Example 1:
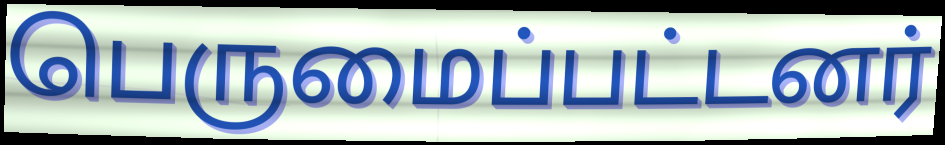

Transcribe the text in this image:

பெருமைப்பட்டனர்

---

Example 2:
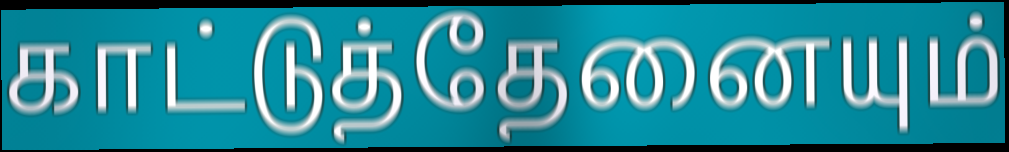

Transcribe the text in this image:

காட்டுத்தேனையும்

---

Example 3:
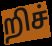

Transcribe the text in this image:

றிச்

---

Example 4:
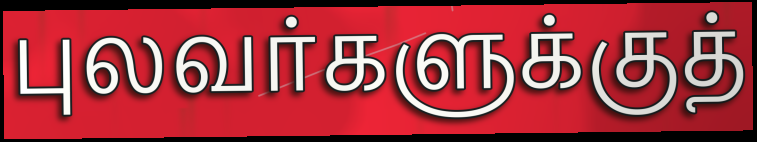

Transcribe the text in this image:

புலவர்களுக்குத்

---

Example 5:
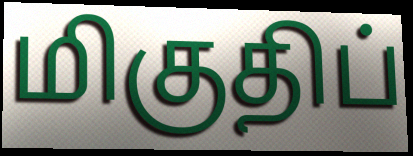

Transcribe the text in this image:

மிகுதிப்